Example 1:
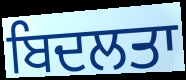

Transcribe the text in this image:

ਬਿਦਲਤਾ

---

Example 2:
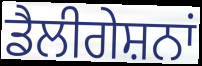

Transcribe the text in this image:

ਡੈਲੀਗੇਸ਼ਨਾਂ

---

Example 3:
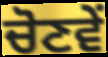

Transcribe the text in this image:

ਚੋਣਵੇਂ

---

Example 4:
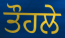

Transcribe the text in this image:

ਤੌਹਲੇ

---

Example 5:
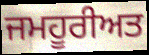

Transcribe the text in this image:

ਜਮਹੂਰੀਅਤ